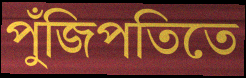
পুঁজিপতিতে